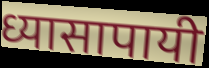
ध्यासापायी